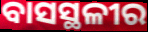
ବାସସ୍ଥଳୀର